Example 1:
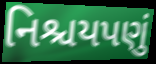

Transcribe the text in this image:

નિશ્ચયપણું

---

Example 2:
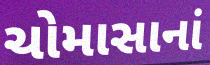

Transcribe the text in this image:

ચોમાસાનાં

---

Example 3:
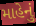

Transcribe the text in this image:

માહેનું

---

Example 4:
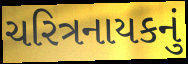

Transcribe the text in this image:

ચરિત્રનાયકનું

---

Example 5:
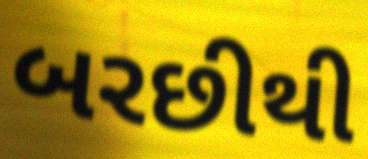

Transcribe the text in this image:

બરછીથી